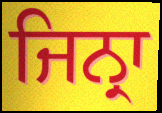
ਜਿਨ੍ਰਾ